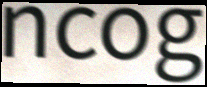
ncog